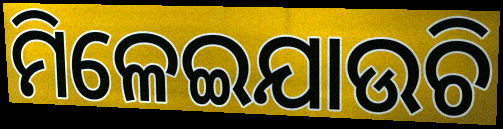
ମିଳେଇଯାଉଚି